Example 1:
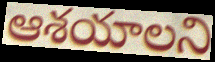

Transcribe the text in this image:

ఆశయాలని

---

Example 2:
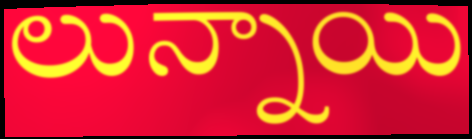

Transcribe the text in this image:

లున్నాయి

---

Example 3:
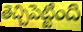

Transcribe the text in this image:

తెచ్చిపెట్టింది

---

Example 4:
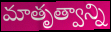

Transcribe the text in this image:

మాతృత్వాన్ని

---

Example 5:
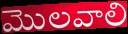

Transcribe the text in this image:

మొలవాలి